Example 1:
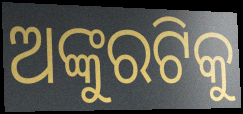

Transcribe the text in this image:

ଅଙ୍କୁରଟିକୁ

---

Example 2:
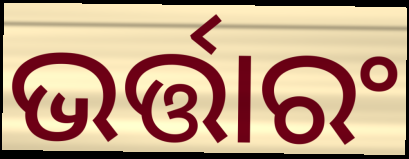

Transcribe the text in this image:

ଭର୍ତ୍ତାରଂ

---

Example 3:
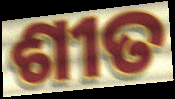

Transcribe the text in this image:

ଶୀତ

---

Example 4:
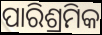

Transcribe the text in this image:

ପାରିଶ୍ରମିକ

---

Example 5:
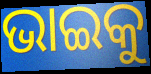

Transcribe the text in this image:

ଭାଇକୁ